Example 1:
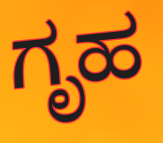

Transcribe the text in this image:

ಗೃಹ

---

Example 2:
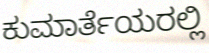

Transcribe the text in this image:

ಕುಮಾರ್ತೆಯರಲ್ಲಿ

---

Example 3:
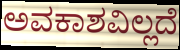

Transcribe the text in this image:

ಅವಕಾಶವಿಲ್ಲದೆ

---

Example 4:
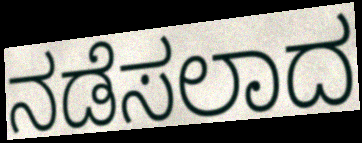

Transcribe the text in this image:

ನಡೆಸಲಾದ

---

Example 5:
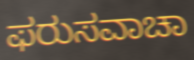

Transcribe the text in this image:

ಫರುಸವಾಚಾ